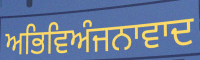
ਅਭਿਵਿਅੰਜਨਾਵਾਦ